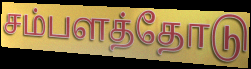
சம்பளத்தோடு